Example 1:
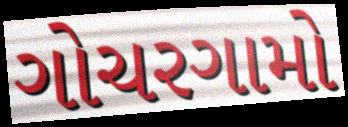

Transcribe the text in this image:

ગોચરગામો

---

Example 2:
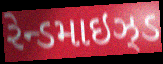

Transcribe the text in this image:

રેન્ડમાઇઝ્ડ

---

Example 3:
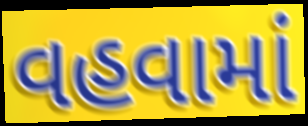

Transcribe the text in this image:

વહવામાં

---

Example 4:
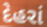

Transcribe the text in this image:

દેહરાં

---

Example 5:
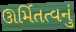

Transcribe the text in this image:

ઊર્મિતત્વનું